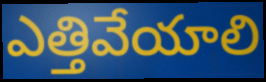
ఎత్తివేయాలి